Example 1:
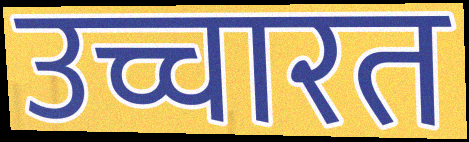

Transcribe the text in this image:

उच्चारत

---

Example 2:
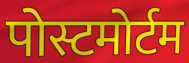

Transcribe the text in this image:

पोस्टमोर्टम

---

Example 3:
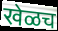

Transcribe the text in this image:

खेळच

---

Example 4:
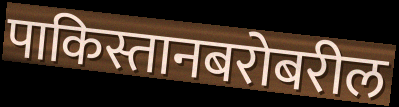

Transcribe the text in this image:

पाकिस्तानबरोबरील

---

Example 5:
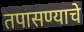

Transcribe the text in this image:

तपासण्याचे